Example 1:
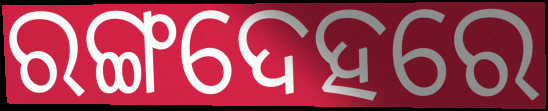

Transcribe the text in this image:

ରଙ୍ଗଦେହରେ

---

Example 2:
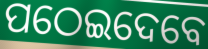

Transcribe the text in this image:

ପଠେଇଦେବେ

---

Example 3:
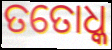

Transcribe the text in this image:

ତତୋଧ୍କ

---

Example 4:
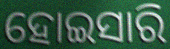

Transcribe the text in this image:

ହୋଇସାରି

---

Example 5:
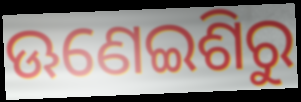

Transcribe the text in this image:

ଊଣେଇଶିରୁ